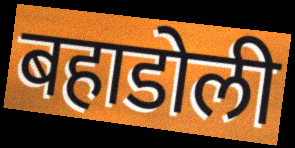
बहाडोली